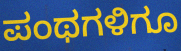
ಪಂಥಗಳಿಗೂ